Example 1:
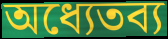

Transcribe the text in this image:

অধ্যেতব্য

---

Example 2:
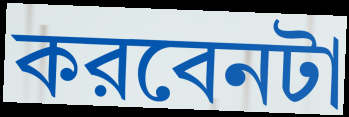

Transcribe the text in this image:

করবেনটা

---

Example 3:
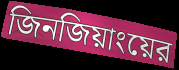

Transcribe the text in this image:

জিনজিয়াংয়ের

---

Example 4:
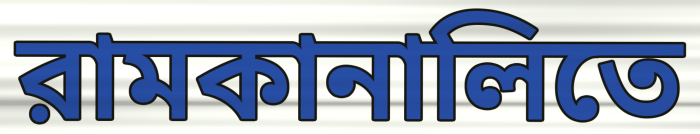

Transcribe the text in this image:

রামকানালিতে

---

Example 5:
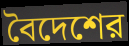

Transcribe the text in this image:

বৈদেশের